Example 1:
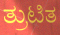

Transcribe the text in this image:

ತ್ರುಟಿತ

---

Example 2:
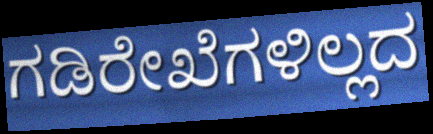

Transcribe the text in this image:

ಗಡಿರೇಖೆಗಳಿಲ್ಲದ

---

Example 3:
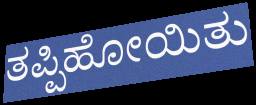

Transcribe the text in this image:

ತಪ್ಪಿಹೋಯಿತು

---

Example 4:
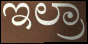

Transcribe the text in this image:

ಇಲ್ರಾ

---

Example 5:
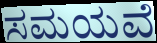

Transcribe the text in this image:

ಸಮಯವೆ